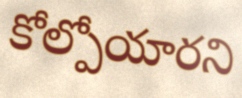
కోల్పోయారని